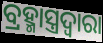
ବ୍ରହ୍ମାସ୍ତ୍ରଦ୍ୱାରା